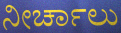
ನೀರ್ಚಾಲು